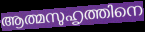
ആത്മസുഹൃത്തിനെ